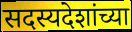
सदस्यदेशांच्या